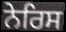
ਨੇਰਿਸ